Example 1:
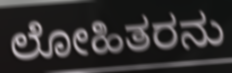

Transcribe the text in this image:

ಲೋಹಿತರನು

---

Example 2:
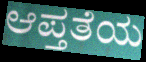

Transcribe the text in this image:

ಆಪ್ತತೆಯ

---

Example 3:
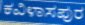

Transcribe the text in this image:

ಕವಿಳಾಸಪುರ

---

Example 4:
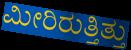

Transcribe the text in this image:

ಮೀರಿರುತ್ತಿತ್ತು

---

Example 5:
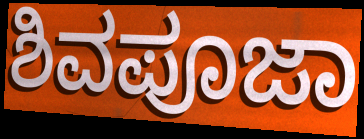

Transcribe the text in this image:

ಶಿವಪೂಜಾ